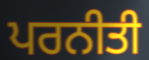
ਪਰਨੀਤੀ